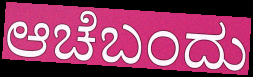
ಆಚೆಬಂದು